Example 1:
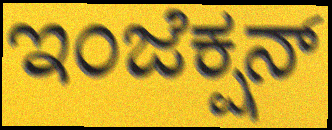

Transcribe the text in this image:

ಇಂಜೆಕ್ಷನ್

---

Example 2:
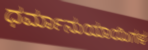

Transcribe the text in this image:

ಧರ್ಮಾನುಯಾಯಿಗಳ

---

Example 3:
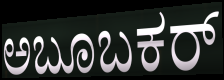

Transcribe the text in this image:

ಅಬೂಬಕರ್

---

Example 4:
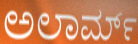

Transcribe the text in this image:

ಅಲಾರ್ಮ್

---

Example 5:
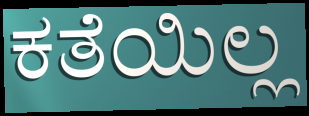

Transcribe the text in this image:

ಕತೆಯಿಲ್ಲ